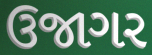
ઉજાગર